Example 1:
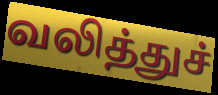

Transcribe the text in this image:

வலித்துச்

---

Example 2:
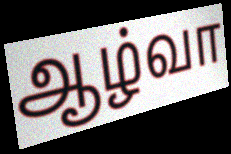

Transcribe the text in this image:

ஆழ்வா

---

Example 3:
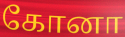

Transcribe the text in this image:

கோனா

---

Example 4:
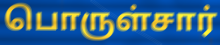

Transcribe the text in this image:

பொருள்சார்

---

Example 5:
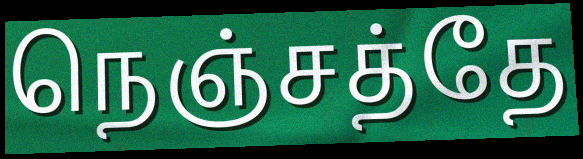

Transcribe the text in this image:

நெஞ்சத்தே